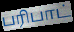
பரிபாட்